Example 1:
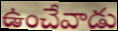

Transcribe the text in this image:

ఉంచేవాడు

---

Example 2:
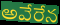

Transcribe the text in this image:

అవేరేన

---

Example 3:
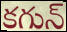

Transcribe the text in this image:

కగున్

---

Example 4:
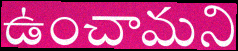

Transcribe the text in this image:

ఉంచామని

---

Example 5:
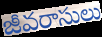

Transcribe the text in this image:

జీవరాసులు